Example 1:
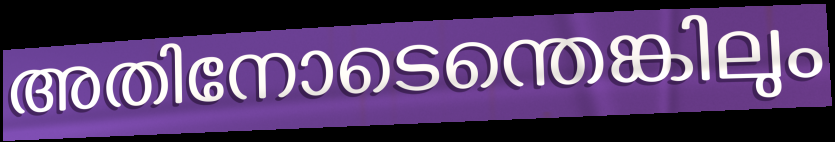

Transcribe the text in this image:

അതിനോടെന്തെങ്കിലും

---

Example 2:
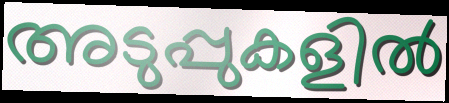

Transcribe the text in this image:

അടുപ്പുകളിൽ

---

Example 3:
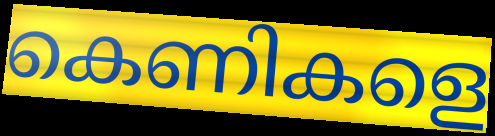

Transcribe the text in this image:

കെണികളെ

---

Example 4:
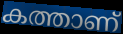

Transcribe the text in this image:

കത്താണ്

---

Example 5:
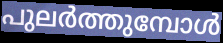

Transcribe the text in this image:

പുലർത്തുമ്പോൾ